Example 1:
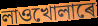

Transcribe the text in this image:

লাওখোলাৰে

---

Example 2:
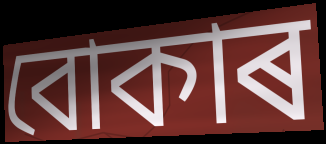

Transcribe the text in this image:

বোকাৰ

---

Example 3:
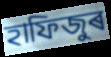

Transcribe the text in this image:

হাফিজুৰ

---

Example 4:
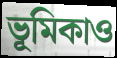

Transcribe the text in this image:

ভূমিকাও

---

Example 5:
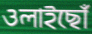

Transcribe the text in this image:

ওলাইছোঁ